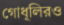
গোধূলিরও